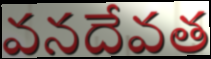
వనదేవత